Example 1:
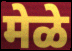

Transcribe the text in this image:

मेळे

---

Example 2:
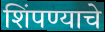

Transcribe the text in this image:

शिंपण्याचे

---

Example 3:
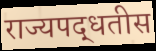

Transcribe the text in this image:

राज्यपद्धतीस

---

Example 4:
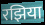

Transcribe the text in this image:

रझिया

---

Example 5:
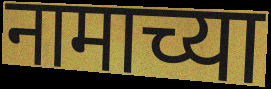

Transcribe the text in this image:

नामाच्या